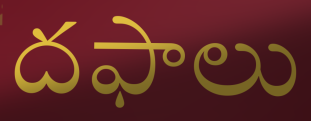
దఫాలు